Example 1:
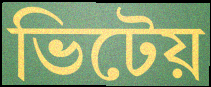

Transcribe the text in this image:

ভিটেয়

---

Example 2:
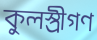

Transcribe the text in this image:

কুলস্ত্রীগণ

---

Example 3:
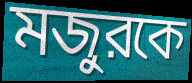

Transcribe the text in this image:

মজুরকে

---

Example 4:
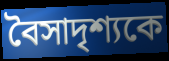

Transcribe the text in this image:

বৈসাদৃশ্যকে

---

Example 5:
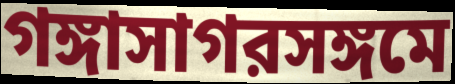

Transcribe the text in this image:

গঙ্গাসাগরসঙ্গমে